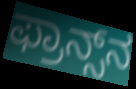
ಫ್ರಾನ್ಸ್‌ನ